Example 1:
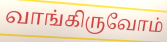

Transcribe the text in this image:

வாங்கிருவோம்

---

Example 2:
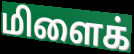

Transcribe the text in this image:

மிளைக்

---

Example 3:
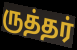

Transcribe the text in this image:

ருத்தர்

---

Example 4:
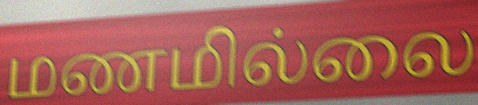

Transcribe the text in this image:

மணமில்லை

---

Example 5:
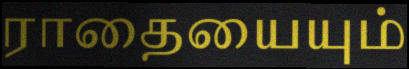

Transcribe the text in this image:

ராதையையும்